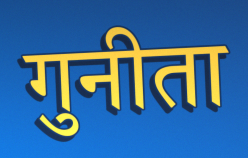
गुनीता